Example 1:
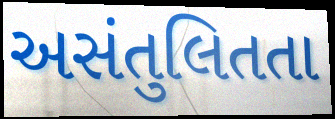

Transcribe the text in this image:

અસંતુલિતતા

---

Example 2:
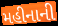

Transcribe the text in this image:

મહીનાની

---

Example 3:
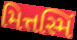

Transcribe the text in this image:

મિત્તસ્મિં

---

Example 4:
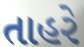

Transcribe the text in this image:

તાહરે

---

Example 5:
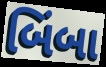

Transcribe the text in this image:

બિંબા